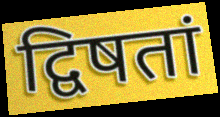
द्विषतां